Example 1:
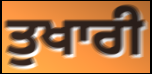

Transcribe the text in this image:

ਤੁਖਾਰੀ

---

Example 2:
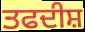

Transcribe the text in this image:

ਤਫਦੀਸ਼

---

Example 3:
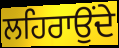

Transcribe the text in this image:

ਲਹਿਰਾਉਂਦੇ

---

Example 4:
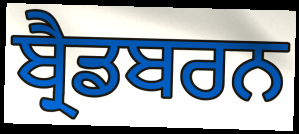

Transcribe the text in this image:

ਬ੍ਰੈਡਬਰਨ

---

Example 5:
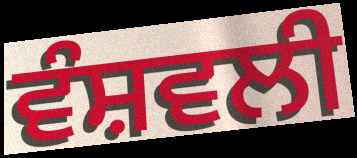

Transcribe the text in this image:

ਵੰਸ਼ਵਲੀ